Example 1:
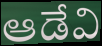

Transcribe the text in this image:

ఆడేవి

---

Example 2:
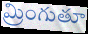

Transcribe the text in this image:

మ్రింగుతూ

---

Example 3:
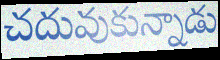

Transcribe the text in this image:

చదువుకున్నాడు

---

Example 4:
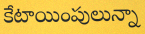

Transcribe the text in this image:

కేటాయింపులున్నా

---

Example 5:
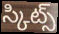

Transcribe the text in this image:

స్కిట్స్